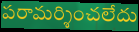
పరామర్శించలేదు